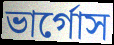
ভার্গোস